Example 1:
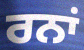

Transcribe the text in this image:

ਰਨਾਂ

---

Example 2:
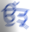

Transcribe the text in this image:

ਉੱਤ੍ਰ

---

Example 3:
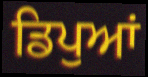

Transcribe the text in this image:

ਡਿਪੁਆਂ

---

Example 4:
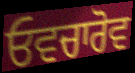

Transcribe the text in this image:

ਓਵਚਾਰੋਵ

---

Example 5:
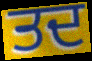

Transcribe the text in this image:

ਤਦ